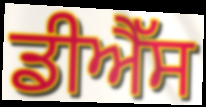
ਡੀਐੱਸ